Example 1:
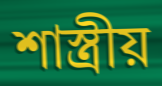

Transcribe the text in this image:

শাস্ত্রীয়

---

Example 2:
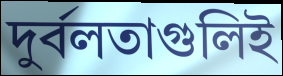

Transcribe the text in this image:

দুর্বলতাগুলিই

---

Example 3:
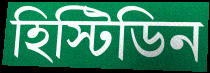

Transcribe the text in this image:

হিস্টিডিন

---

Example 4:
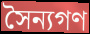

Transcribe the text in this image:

সৈন্যগণ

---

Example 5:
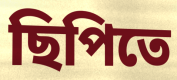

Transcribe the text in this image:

ছিপিতে